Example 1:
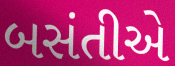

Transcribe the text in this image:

બસંતીએ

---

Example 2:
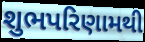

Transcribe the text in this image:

શુભપરિણામથી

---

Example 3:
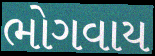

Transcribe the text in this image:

ભોગવાય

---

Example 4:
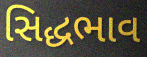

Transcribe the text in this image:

સિદ્ધભાવ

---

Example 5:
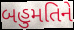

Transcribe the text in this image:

બહુમતિને